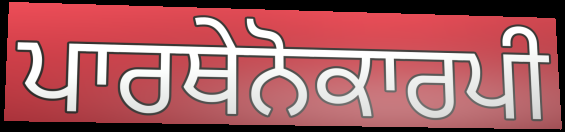
ਪਾਰਥੇਨੋਕਾਰਪੀ